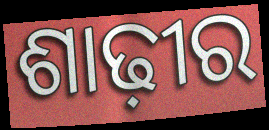
ଶାଢ଼ୀର